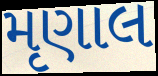
મૃણાલ